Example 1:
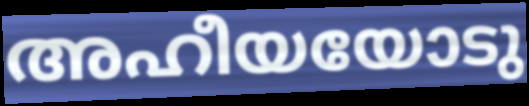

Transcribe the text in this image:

അഹീയയോടു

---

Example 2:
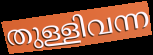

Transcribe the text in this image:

തുള്ളിവന്ന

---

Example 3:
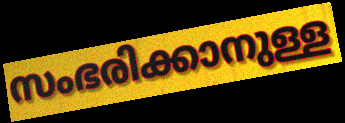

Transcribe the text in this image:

സംഭരിക്കാനുള്ള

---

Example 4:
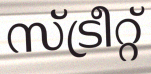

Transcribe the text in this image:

സ്ട്രീറ്റ്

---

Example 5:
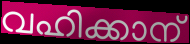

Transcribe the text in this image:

വഹിക്കാന്